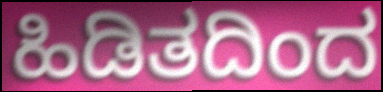
ಹಿಡಿತದಿಂದ